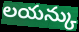
లయన్కు